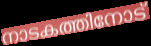
നാടകത്തിനോട്